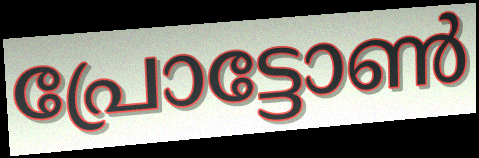
പ്രോട്ടോൺ